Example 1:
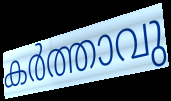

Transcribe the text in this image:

കർത്താവു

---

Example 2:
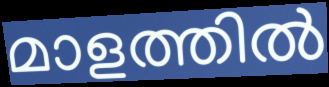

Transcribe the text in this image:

മാളത്തിൽ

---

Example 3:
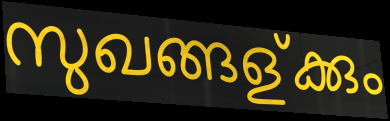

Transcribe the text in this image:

സുഖങ്ങള്ക്കും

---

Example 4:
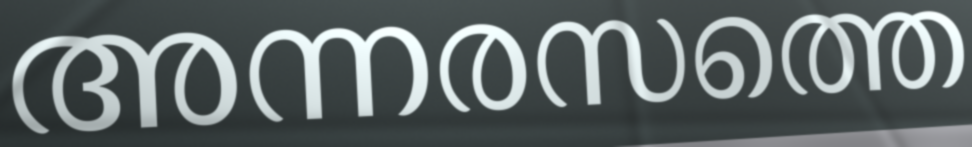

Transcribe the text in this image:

അന്നരസത്തെ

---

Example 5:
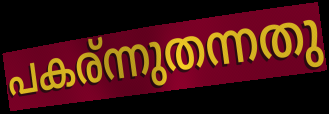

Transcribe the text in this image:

പകര്ന്നുതന്നതു